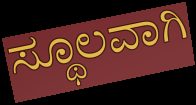
ಸ್ಥೂಲವಾಗಿ